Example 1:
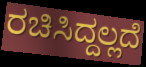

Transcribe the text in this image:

ರಚಿಸಿದ್ದಲ್ಲದೆ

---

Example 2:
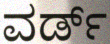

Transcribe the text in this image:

ವರ್ಡ್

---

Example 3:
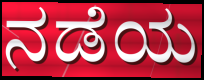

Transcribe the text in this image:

ನಡೆಯ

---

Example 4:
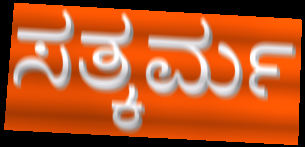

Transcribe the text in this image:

ಸತ್ಕರ್ಮ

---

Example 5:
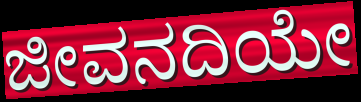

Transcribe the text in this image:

ಜೀವನದಿಯೇ